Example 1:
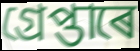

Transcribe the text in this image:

গ্ৰেপ্তাৰে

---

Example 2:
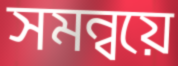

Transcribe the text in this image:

সমন্বয়ে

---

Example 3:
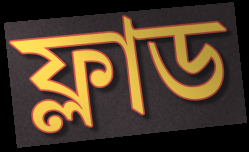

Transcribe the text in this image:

ফ্লাড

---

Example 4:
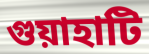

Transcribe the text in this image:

গুয়াহাটি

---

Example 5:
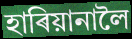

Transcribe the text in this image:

হাৰিয়ানালৈ